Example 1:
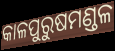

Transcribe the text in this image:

କାଳପୁରୁଷମଣ୍ଡଳ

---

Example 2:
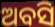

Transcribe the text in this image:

ଅବସି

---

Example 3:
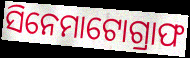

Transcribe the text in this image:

ସିନେମାଟୋଗ୍ରାଫ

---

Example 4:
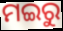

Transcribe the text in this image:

ମଇରୁ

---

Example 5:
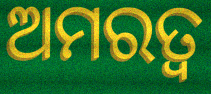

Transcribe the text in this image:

ଅମରତ୍ଵ